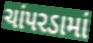
ચાંપરડામાં